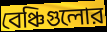
বেঞ্চিগুলোর